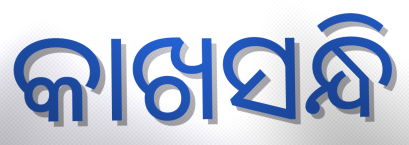
କାଖସନ୍ଧି